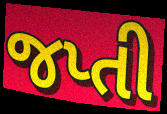
જપ્તી